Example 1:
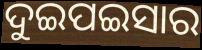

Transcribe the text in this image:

ଦୁଇପଇସାର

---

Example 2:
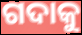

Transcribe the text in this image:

ଗଦାକୁ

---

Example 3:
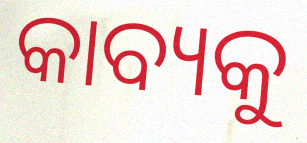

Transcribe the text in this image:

କାବ୍ୟକୁ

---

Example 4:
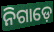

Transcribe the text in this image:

ନିଗାଡ଼େ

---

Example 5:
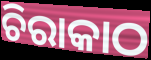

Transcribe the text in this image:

ଚିରାକାଠ